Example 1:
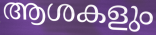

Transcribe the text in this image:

ആശകളും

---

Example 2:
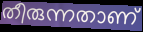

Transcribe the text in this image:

തീരുന്നതാണ്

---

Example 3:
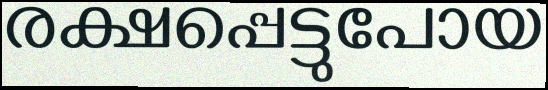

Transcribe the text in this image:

രക്ഷപ്പെട്ടുപോയ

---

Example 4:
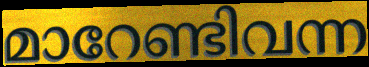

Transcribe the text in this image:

മാറേണ്ടിവന്ന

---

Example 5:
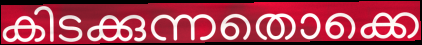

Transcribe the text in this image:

കിടക്കുന്നതൊക്കെ